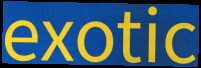
exotic